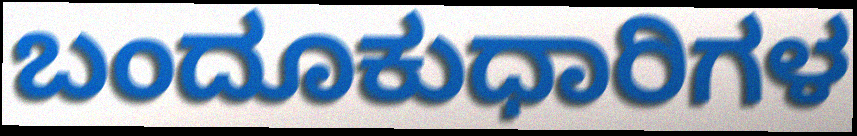
ಬಂದೂಕುಧಾರಿಗಳ